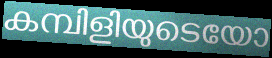
കമ്പിളിയുടെയോ